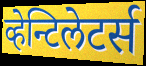
व्हेन्टिलेटर्स